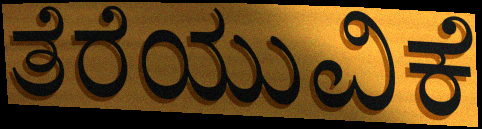
ತೆರೆಯುವಿಕೆ